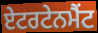
ਏਟਰਟੇਨਮੈਂਟ